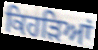
ਕਿਹੜਿਆਂ